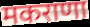
मकराणा